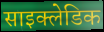
साइक्लेडिक